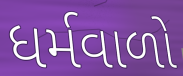
ધર્મવાળો